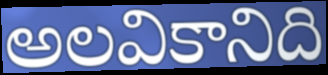
అలవికానిది